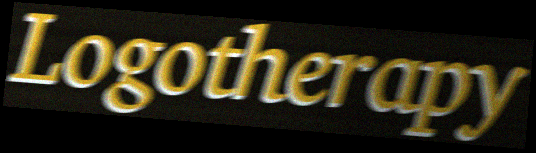
Logotherapy